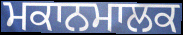
ਮਕਾਨਮਾਲਕ